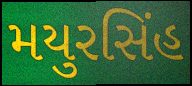
મયુરસિંહ